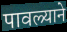
पावल्याने